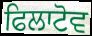
ਫਿਲਾਟੋਵ